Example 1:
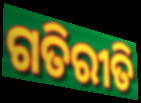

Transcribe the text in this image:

ଗତିରୀତି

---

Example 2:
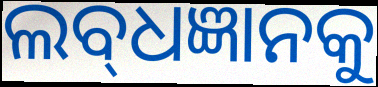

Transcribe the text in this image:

ଲବ୍‌ଧଜ୍ଞାନକୁ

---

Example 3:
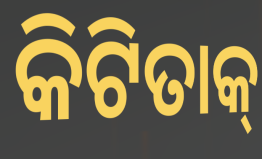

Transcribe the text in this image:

କିଟିତାକ୍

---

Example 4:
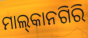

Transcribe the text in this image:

ମାଲ୍‌କାନଗିରି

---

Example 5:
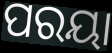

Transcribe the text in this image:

ପରୟା